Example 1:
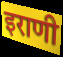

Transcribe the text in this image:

इराणी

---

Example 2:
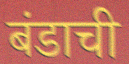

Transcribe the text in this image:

बंडाची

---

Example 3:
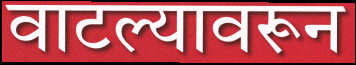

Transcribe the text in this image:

वाटल्यावरून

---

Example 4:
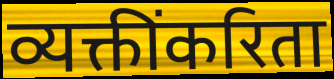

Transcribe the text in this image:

व्यक्तींकरिता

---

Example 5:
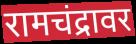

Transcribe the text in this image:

रामचंद्रावर